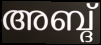
അബ്ദ്